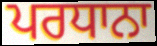
ਪਰਧਾਨਾ